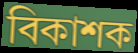
বিকাশক